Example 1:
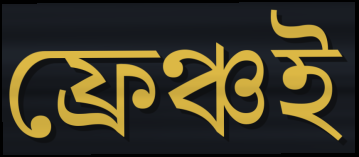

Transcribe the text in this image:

ফ্রেঞ্চই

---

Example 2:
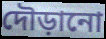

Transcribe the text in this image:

দৌড়ানো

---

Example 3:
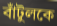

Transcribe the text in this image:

বাঁটুলকে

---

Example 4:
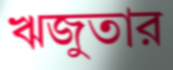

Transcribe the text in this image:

ঋজুতার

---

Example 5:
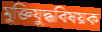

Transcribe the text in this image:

মুক্তিযুদ্ধবিষয়ক